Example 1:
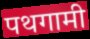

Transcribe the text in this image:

पथगामी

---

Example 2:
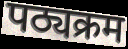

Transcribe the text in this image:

पठ्यक्रम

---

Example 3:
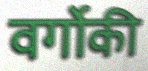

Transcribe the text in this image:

वर्गोकी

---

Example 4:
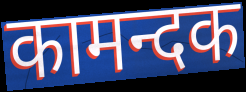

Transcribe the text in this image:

कामन्दक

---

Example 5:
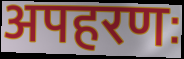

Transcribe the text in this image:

अपहरणः